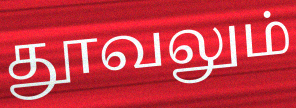
தூவலும்